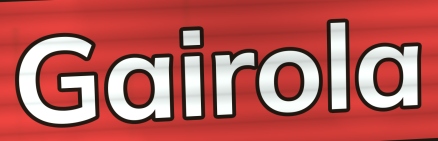
Gairola